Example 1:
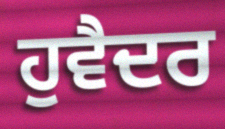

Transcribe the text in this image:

ਹੁਵੈਦਰ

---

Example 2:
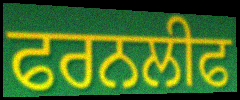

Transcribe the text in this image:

ਫਰਨਲੀਫ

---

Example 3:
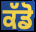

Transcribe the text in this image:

ਕੱਡੋ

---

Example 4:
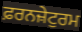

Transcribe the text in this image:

ਫ਼ਰਨਜ਼ੇਟੁਰਮ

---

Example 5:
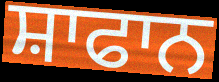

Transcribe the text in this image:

ਸ਼ਾਫਾਨ